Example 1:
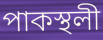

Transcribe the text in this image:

পাকস্থলী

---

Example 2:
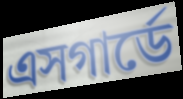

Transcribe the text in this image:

এসগার্ডে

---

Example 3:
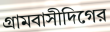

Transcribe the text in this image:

গ্রামবাসীদিগের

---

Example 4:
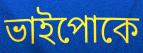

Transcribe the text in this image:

ভাইপোকে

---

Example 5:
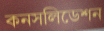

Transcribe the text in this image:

কনসলিডেশন